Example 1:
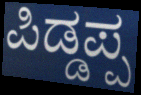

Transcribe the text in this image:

ಪಿಡ್ಡಪ್ಪ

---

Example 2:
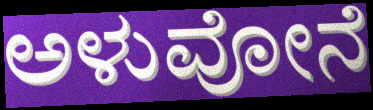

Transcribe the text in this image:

ಅಳುವೋನೆ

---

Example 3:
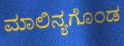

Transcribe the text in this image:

ಮಾಲಿನ್ಯಗೊಂಡ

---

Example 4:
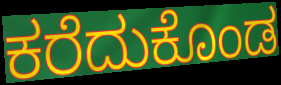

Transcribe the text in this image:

ಕರೆದುಕೊಂಡ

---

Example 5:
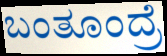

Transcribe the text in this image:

ಬಂತೂಂದ್ರೆ